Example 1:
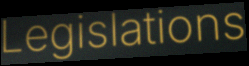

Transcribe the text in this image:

Legislations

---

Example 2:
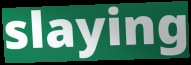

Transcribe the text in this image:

slaying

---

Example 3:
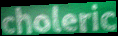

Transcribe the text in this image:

choleric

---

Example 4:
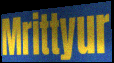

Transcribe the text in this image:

Mrittyur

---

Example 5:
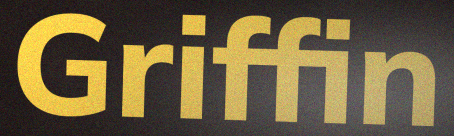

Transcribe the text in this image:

Griffin